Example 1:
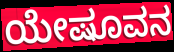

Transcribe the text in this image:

ಯೇಷೂವನ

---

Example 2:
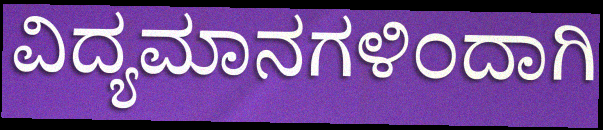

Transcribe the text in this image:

ವಿದ್ಯಮಾನಗಳಿಂದಾಗಿ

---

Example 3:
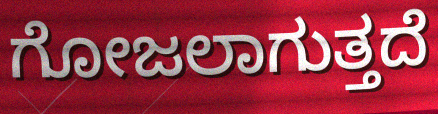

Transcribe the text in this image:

ಗೋಜಲಾಗುತ್ತದೆ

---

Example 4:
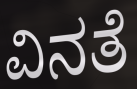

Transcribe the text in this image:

ವಿನತೆ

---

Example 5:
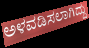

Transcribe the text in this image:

ಅಳವಡಿಸಲಾಗಿದ್ದು